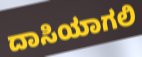
ದಾಸಿಯಾಗಲಿ